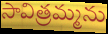
సావిత్రమ్మను